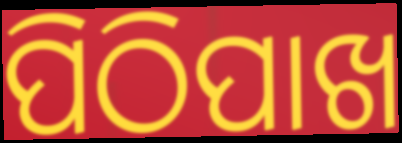
ପିଠିପାଖ